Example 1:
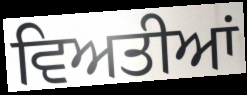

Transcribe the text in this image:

ਵਿਅਤੀਆਂ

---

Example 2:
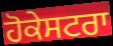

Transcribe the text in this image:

ਹੋਕੇਸਟਰਾ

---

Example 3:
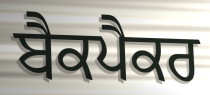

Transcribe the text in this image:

ਬੈਕਪੈਕਰ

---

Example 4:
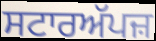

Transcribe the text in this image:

ਸਟਾਰਅੱਪਜ਼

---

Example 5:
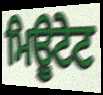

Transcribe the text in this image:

ਮਿਊਟੇਟ